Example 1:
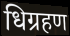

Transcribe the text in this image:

धिग्रहण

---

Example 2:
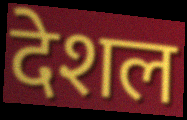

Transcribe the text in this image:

देशल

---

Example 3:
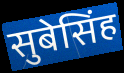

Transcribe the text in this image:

सुबेसिंह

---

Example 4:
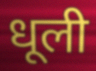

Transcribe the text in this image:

धूली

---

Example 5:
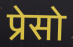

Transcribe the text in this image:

प्रेसो